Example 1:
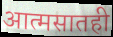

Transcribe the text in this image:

आत्मसातही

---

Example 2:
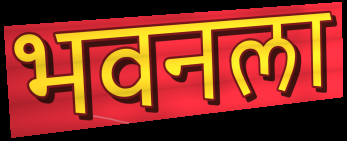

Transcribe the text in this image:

भवनला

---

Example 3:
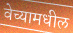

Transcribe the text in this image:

वेच्यामधील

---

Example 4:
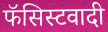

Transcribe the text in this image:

फॅसिस्टवादी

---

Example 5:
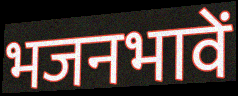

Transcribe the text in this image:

भजनभावें